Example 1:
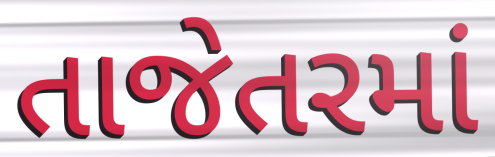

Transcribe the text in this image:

તાજેતરમાં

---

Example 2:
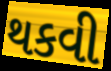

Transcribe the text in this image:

થકવી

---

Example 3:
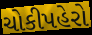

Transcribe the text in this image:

ચોકીપહેરો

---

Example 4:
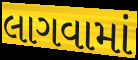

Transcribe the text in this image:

લાગવામાં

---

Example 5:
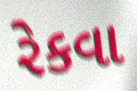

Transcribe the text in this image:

રેકવા